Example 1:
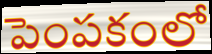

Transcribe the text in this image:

పెంపకంలో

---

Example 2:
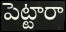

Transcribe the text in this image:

పెట్టారా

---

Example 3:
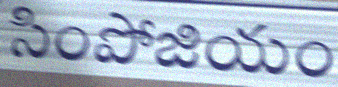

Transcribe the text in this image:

సింపోజియం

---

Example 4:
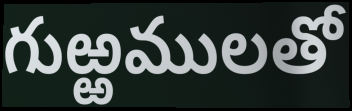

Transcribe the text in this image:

గుఱ్ఱములతో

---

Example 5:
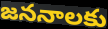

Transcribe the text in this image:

జననాలకు